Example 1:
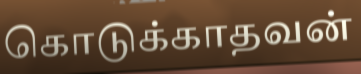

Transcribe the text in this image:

கொடுக்காதவன்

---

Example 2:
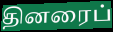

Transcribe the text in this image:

தினரைப்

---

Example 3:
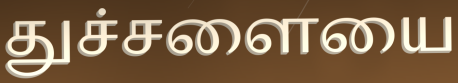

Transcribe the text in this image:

துச்சளையை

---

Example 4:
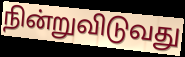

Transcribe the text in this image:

நின்றுவிடுவது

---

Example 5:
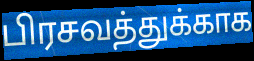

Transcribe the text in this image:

பிரசவத்துக்காக